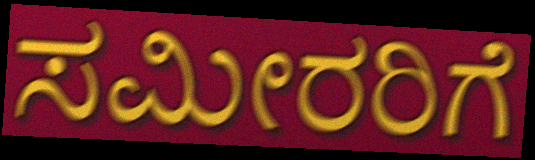
ಸಮೀರರಿಗೆ